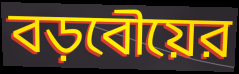
বড়বৌয়ের